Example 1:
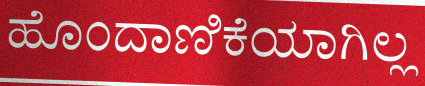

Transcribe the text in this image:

ಹೊಂದಾಣಿಕೆಯಾಗಿಲ್ಲ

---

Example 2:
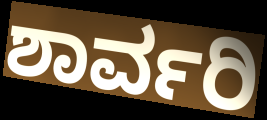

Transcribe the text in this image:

ಶಾರ್ವರಿ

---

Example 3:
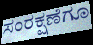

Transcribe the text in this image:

ಸಂರಕ್ಷಣೆಗೂ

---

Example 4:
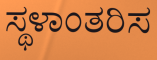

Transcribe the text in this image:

ಸ್ಥಳಾಂತರಿಸ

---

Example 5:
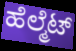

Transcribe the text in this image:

ಹೆಲ್ಮೆಟ್